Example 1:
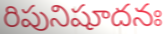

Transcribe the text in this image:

రిపునిషూదనః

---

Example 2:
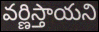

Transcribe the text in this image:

వర్ణిస్తాయని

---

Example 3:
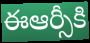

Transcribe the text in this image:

ఈఆర్సీకి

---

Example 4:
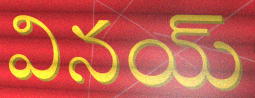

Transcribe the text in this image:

వినయ్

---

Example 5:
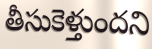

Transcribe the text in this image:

తీసుకెళ్తుందని